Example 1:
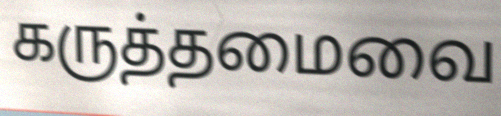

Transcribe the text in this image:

கருத்தமைவை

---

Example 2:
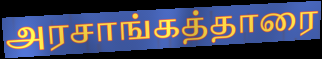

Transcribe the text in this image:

அரசாங்கத்தாரை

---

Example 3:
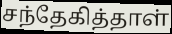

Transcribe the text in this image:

சந்தேகித்தாள்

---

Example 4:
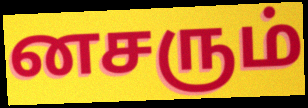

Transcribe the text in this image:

னசரும்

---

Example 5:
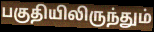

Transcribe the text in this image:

பகுதியிலிருந்தும்